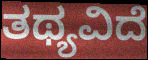
ತಥ್ಯವಿದೆ